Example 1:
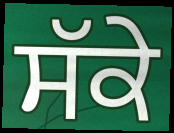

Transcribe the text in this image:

ਸੱਕੇ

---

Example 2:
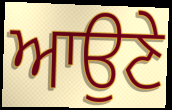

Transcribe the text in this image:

ਆਉਣੇ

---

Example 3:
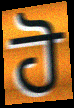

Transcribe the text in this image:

ਹੋ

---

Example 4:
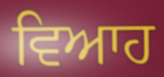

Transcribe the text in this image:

ਵਿਆਹ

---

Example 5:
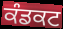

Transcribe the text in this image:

ਕੰਡਕਟ